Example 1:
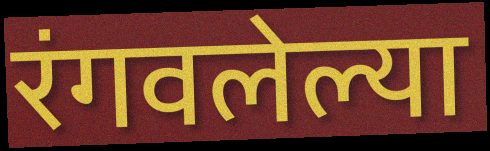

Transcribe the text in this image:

रंगवलेल्या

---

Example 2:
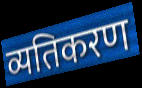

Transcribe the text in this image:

व्यतिकरण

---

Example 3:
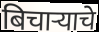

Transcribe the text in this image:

बिचाऱ्याचे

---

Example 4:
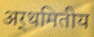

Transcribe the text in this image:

अर्थमितीय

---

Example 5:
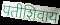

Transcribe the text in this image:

पतीशिवाय